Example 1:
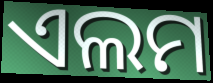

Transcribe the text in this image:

ଏଲମ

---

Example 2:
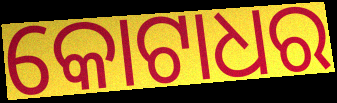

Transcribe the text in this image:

କୋଟାଧର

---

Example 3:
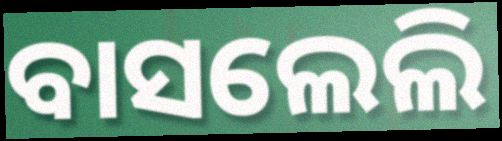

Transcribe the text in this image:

ବାସଲେଲି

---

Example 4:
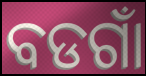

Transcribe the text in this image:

ବଡଗାଁ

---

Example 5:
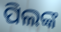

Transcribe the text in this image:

ପିଲଙ୍କ